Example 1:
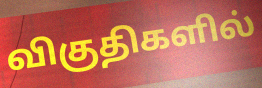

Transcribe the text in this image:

விகுதிகளில்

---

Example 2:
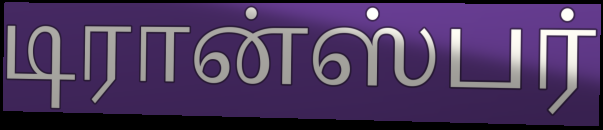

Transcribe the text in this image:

டிரான்ஸ்பர்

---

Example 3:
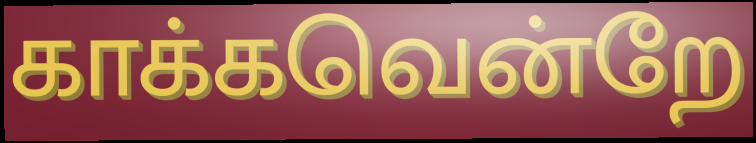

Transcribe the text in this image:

காக்கவென்றே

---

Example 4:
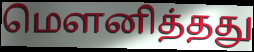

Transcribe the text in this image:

மௌனித்தது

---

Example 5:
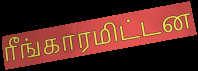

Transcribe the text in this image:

ரீங்காரமிட்டன